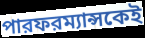
পারফরম্যান্সকেই